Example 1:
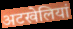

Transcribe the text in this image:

अटखेलियां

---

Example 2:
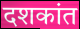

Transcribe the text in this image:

दशकांत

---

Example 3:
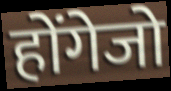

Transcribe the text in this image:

होंगेजो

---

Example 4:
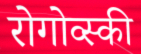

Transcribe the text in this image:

रोगोव्स्की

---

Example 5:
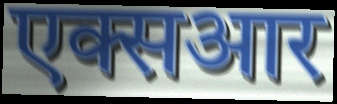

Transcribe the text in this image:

एक्सआर